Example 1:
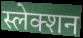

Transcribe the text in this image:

स्लेक्शन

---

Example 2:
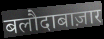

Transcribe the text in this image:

बलौदाबाज़ार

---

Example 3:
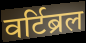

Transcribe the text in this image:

वर्टिब्रल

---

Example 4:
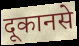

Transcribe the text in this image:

दूकानसे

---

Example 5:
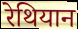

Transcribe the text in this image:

रेथियान